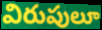
విరుపులూ